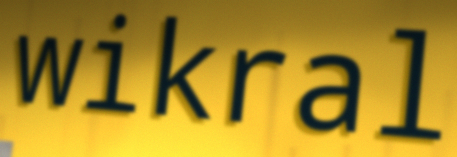
wikral